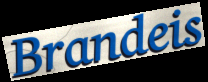
Brandeis